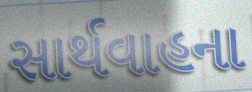
સાર્થવાહના